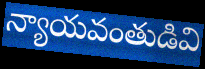
న్యాయవంతుడివి